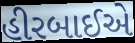
હીરબાઈએ